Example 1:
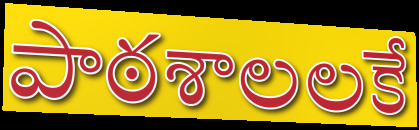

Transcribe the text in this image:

పాఠశాలలకే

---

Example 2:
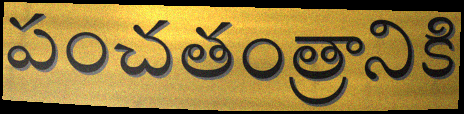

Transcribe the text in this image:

పంచతంత్రానికి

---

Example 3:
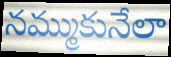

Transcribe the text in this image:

నమ్ముకునేలా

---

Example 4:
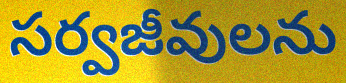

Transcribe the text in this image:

సర్వజీవులను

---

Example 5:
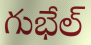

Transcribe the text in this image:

గుభేల్